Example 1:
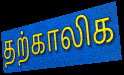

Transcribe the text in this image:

தற்காலிக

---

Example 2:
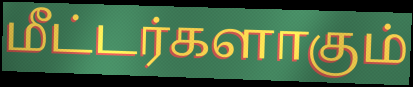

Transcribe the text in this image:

மீட்டர்களாகும்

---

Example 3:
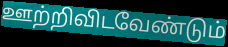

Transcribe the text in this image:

ஊற்றிவிடவேண்டும்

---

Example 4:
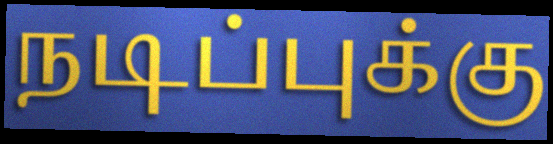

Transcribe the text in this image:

நடிப்புக்கு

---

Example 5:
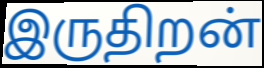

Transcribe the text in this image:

இருதிறன்